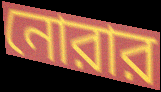
নোরার